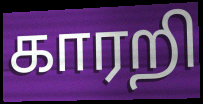
காரறி